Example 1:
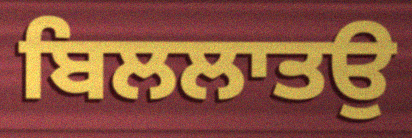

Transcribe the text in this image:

ਬਿਲਲਾਤਉ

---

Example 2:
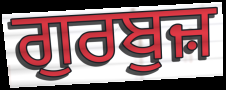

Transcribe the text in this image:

ਗੁਰਬੁਜ਼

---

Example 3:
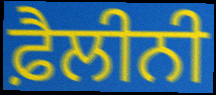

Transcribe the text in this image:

ਫ਼ੈਲੀਨੀ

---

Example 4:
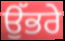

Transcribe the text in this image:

ਉੱਭਰੇ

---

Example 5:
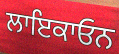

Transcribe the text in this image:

ਲਾਇਕਾਓਨ